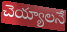
చెయ్యాలనే